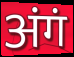
अंगं